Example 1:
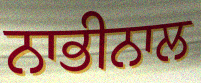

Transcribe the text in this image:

ਨਾਭੀਨਾਲ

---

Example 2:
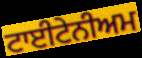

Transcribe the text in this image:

ਟਾਈਟੇਨੀਅਮ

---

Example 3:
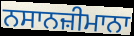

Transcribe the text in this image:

ਨਸਾਨਜ਼ੀਮਾਨਾ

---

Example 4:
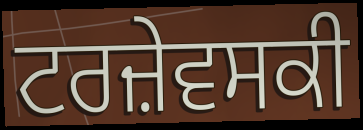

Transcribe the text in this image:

ਟਰਜ਼ੇਵਸਕੀ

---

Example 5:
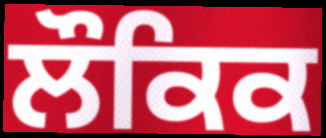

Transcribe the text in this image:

ਲੌਕਿਕ